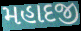
મહાદજી